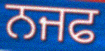
ਨਜਫ